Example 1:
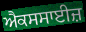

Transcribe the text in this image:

ਐਕਸਸਾਈਜ਼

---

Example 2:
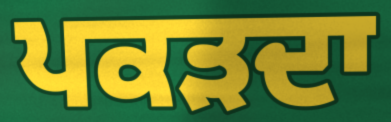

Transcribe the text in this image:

ਪਕੜਦਾ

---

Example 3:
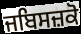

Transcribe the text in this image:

ਜਬਿਸਜ਼ਕੋ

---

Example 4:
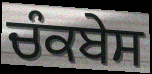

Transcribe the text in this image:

ਚੰਕਬੇਸ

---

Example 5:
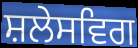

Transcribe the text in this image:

ਸ਼ਲੇਸਵਿਗ